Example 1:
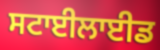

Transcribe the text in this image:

ਸਟਾਈਲਾਈਡ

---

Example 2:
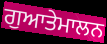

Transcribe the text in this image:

ਗੁਆਤੇਮਾਲਨ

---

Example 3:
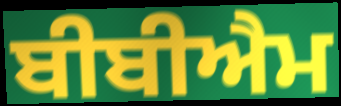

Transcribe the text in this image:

ਬੀਬੀਐਮ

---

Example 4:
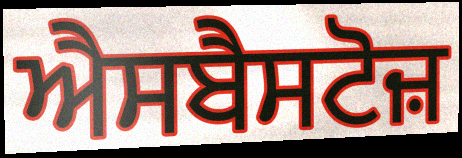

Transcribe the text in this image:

ਐਸਬੈਸਟੋਜ਼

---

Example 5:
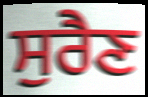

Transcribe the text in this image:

ਸੁਰੈਣ